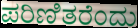
ಪರಿಣಿತರೆಂದು